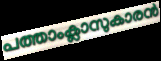
പത്താംക്ലാസുകാരൻ